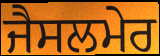
ਜੈਸਲਮੇਰ